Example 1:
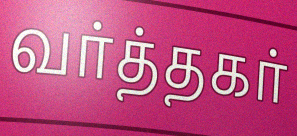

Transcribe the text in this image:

வர்த்தகர்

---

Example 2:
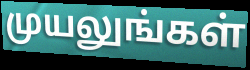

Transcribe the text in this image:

முயலுங்கள்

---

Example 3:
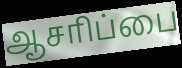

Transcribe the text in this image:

ஆசரிப்பை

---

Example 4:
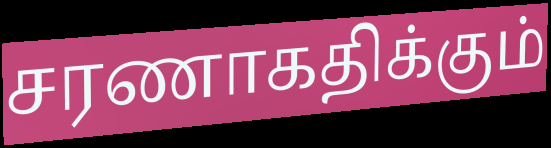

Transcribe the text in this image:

சரணாகதிக்கும்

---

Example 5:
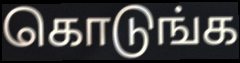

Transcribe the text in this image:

கொடுங்க